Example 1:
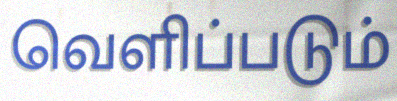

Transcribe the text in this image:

வெளிப்படும்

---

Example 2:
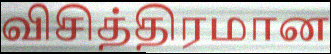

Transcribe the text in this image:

விசித்திரமான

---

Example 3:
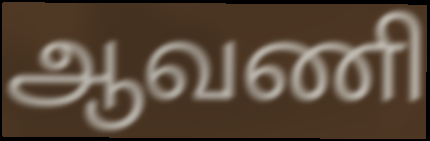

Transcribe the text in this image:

ஆவணி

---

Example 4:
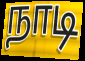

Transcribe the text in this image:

நாடி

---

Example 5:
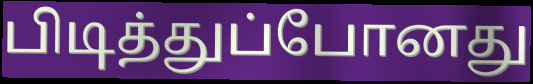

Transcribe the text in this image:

பிடித்துப்போனது